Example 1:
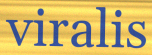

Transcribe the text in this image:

viralis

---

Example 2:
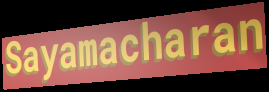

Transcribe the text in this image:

Sayamacharan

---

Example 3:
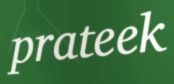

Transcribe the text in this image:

prateek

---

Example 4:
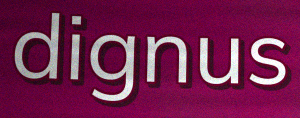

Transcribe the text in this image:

dignus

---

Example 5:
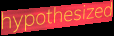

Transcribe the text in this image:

hypothesized